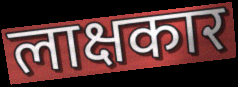
लाक्षकार